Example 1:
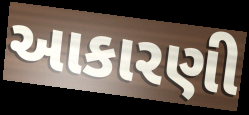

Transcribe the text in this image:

આકારણી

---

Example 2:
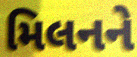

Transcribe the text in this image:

મિલનને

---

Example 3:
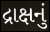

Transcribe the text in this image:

દ્રાક્ષનું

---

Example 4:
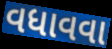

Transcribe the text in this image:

વધાવવા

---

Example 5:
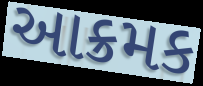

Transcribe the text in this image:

આક્રમક